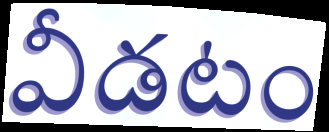
వీడటం